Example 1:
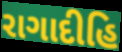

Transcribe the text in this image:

રાગાદીહિ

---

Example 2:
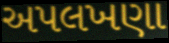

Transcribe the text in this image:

અપલખણા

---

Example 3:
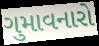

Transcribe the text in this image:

ગુમાવનારો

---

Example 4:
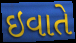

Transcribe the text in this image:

ઇવાતે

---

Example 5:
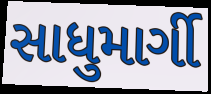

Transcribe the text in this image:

સાધુમાર્ગી